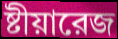
ষ্টীয়ারেজ